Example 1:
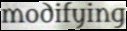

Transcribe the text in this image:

modifying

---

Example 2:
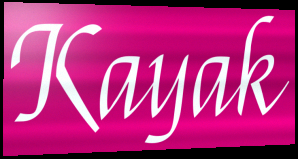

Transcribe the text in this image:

Kayak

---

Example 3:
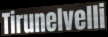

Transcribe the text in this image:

Tirunelvelli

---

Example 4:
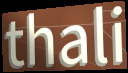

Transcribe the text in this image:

thali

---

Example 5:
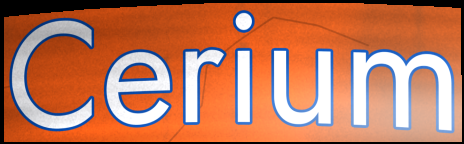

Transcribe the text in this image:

Cerium